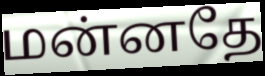
மன்னதே